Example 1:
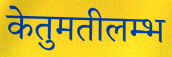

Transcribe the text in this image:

केतुमतीलम्भ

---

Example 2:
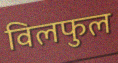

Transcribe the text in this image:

विलफुल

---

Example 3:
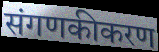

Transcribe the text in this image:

संगणकीकरण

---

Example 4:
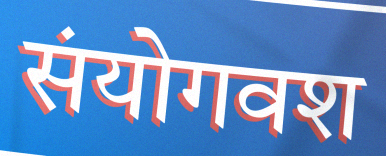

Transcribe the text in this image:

संयोगवश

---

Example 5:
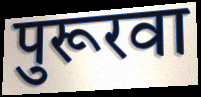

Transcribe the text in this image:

पुरूरवा